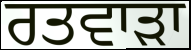
ਰਤਵਾੜਾ